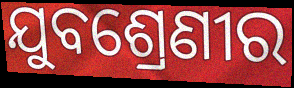
ଯୁବଶ୍ରେଣୀର